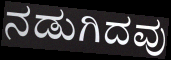
ನಡುಗಿದವು